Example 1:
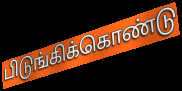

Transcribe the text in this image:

பிடுங்கிக்கொண்டு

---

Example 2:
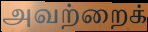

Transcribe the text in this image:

அவற்றைக்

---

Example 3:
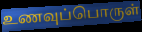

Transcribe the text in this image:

உணவுப்பொருள்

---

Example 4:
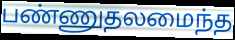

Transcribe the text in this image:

பண்ணுதலமைந்த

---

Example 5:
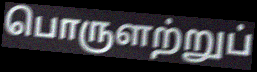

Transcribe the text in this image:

பொருளற்றுப்